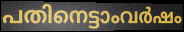
പതിനെട്ടാംവർഷം